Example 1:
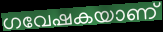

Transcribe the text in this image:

ഗവേഷകയാണ്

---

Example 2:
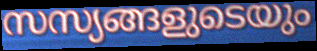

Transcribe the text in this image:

സസ്യങ്ങളുടെയും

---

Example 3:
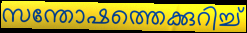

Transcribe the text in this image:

സന്തോഷത്തെക്കുറിച്ച്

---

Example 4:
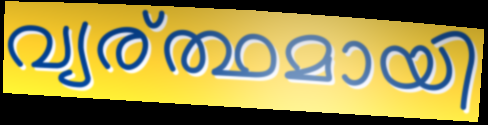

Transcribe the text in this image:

വ്യര്ത്ഥമായി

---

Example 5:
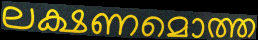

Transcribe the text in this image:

ലക്ഷണമൊത്ത